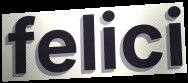
felici